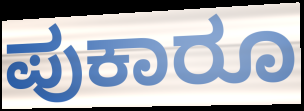
ಪುಕಾರೂ